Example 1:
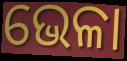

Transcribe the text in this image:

ଭେଳା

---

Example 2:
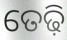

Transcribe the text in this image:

ତେଢ଼ି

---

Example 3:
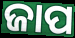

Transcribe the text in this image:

ଜାପ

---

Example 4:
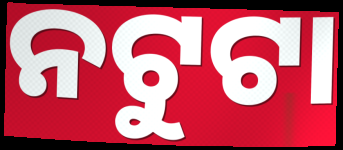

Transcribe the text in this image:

ନଟୁଟା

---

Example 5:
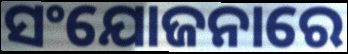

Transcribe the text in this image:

ସଂଯୋଜନାରେ